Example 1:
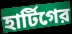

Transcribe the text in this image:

হার্টিগের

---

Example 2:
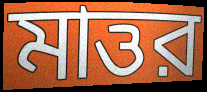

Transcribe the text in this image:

মাত্তর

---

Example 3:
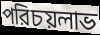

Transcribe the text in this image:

পরিচয়লাভ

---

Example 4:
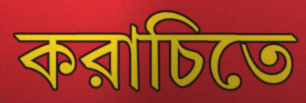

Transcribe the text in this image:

করাচিতে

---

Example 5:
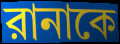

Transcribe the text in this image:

রানাকে